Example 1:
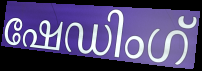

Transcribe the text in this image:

ഷേഡിംഗ്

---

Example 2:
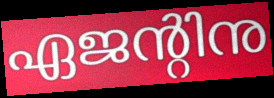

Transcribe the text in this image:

ഏജന്റിനു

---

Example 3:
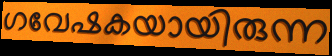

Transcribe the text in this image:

ഗവേഷകയായിരുന്ന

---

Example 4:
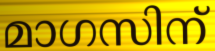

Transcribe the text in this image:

മാഗസിന്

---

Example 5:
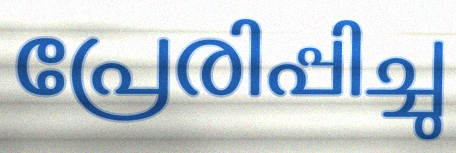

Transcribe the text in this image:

പ്രേരിപ്പിച്ചു